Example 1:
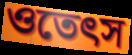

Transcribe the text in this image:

ওতেৎস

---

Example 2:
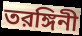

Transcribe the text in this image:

তরঙ্গিনী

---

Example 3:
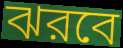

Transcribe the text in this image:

ঝরবে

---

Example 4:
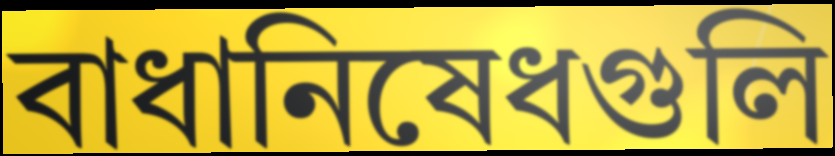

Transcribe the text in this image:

বাধানিষেধগুলি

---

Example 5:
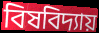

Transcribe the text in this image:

বিষবিদ্যায়